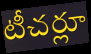
టీచర్లూ